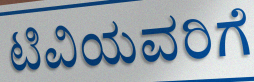
ಟಿವಿಯವರಿಗೆ